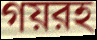
গয়রহ